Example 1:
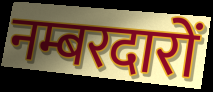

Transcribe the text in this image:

नम्बरदारों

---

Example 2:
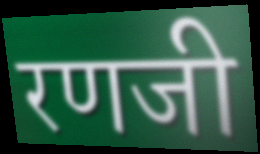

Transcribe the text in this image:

रणजी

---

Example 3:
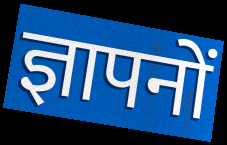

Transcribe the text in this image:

ज्ञापनों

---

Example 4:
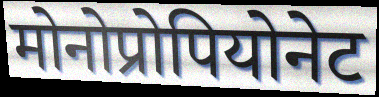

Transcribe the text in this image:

मोनोप्रोपियोनेट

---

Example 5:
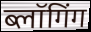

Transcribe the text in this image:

ब्लॉगिंग